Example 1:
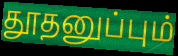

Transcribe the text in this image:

தூதனுப்பும்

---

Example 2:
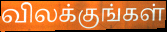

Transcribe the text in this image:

விலக்குங்கள்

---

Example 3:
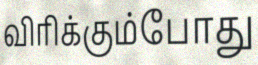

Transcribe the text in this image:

விரிக்கும்போது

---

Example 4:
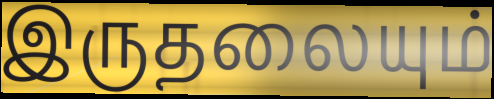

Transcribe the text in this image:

இருதலையும்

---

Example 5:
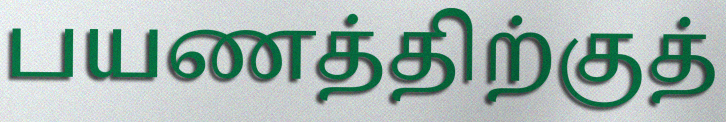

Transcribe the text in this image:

பயணத்திற்குத்